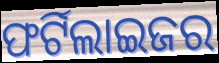
ଫର୍ଟିଲାଇଜର